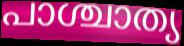
പാശ്ചാത്യ